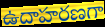
ఉదాహరణగా